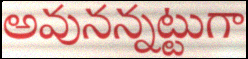
అవునన్నట్టుగా